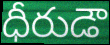
ధీరుడౌ